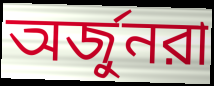
অর্জুনরা